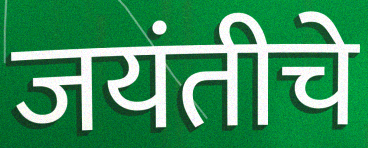
जयंतीचे